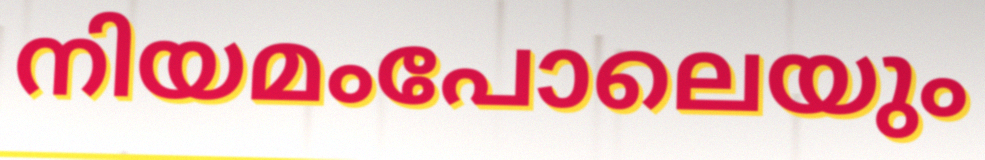
നിയമംപോലെയും